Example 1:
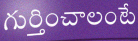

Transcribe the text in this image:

గుర్తించాలంటే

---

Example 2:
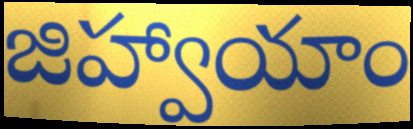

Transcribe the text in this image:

జిహ్వాయాం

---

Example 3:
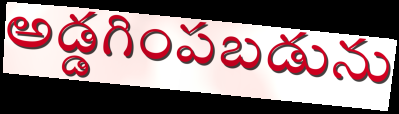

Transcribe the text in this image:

అడ్డగింపబడును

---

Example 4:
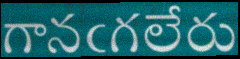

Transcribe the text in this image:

గానఁగలేరు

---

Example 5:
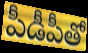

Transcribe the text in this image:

పీడీపీతో